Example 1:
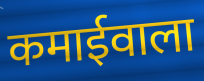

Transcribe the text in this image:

कमाईवाला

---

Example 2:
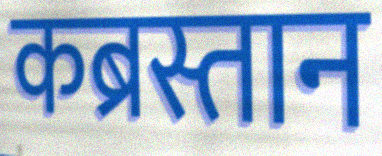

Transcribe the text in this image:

कब्रस्तान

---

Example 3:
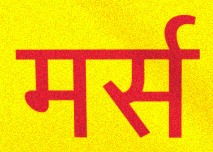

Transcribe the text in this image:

मर्स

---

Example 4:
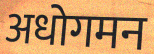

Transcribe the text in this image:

अधोगमन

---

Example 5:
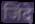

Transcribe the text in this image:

जिंदे